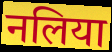
नलिया